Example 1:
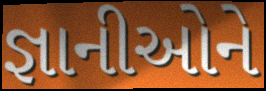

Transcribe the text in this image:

જ્ઞાનીઓને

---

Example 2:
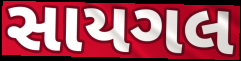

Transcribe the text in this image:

સાયગલ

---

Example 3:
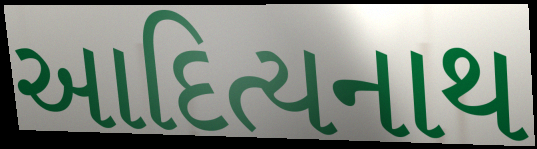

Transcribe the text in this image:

આદિત્યનાથ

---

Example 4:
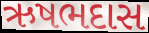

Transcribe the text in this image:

ઋષભદાસ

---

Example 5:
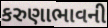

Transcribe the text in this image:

કરુણાભાવની